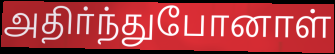
அதிர்ந்துபோனாள்